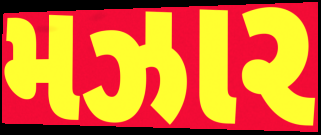
મઝાર